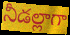
నీడల్లాగా